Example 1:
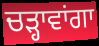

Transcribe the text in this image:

ਚੜ੍ਹਾਵਾਂਗਾ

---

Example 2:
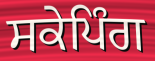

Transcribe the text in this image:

ਸਕੇਪਿੰਗ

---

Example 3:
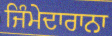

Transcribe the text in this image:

ਜਿੰਮੇਦਾਰਾਨਾ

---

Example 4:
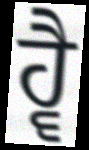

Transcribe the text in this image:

ਹ੍ਵੈ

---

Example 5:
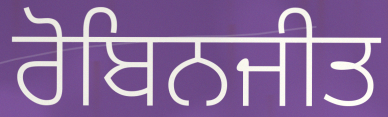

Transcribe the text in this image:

ਰੋਬਿਨਜੀਤ